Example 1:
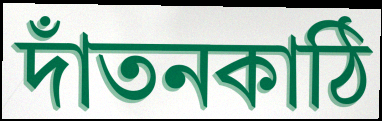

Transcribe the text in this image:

দাঁতনকাঠি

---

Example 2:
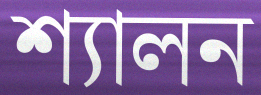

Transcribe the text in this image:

শ্যালন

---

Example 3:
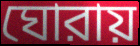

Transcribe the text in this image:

ঘোরায়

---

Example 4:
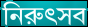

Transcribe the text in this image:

নিরুৎসব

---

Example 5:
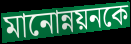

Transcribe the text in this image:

মানোন্নয়নকে